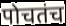
पोचतंच